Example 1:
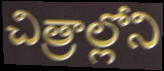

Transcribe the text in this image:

చిత్రాల్లోని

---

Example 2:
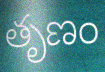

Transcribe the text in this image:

తృణం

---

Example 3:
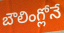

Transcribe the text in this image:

బౌలింగ్లోనే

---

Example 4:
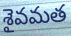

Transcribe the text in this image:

శైవమత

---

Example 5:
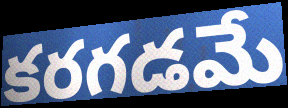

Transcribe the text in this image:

కరగడమే